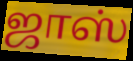
ஜாஸ்